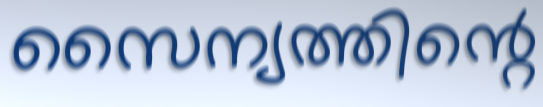
സൈന്യത്തിന്റെ